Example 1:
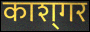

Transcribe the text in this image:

काश्गर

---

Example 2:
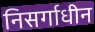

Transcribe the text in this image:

निसर्गाधीन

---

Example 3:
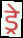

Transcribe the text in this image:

ड्रे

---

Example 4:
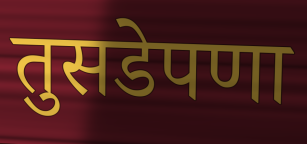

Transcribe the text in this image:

तुसडेपणा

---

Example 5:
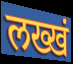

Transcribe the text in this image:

लख्खं